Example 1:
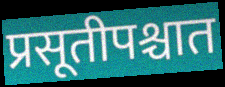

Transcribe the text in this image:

प्रसूतीपश्चात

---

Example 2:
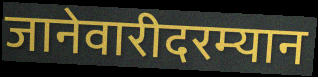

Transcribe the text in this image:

जानेवारीदरम्यान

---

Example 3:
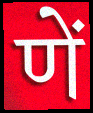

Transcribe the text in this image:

णें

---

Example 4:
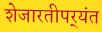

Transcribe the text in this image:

शेजारतीपर्यंत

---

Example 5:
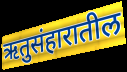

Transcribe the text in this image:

ऋतुसंहारातील